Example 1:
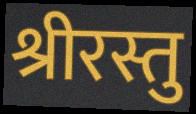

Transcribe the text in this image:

श्रीरस्तु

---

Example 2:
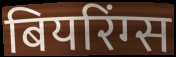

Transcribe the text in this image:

बियरिंग्स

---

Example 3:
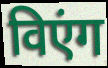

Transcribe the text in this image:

विएंग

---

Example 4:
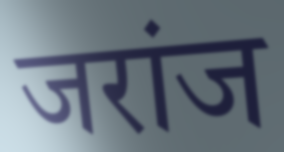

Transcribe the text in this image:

जरांज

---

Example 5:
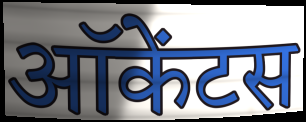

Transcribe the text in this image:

ऑकेंटस